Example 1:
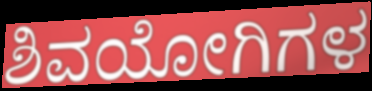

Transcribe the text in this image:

ಶಿವಯೋಗಿಗಳ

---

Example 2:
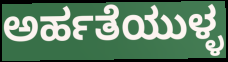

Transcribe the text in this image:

ಅರ್ಹತೆಯುಳ್ಳ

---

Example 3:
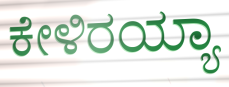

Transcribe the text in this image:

ಕೇಳಿರಯ್ಯಾ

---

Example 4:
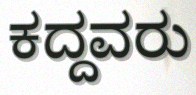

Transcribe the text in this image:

ಕದ್ದವರು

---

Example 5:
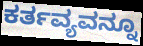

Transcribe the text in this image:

ಕರ್ತವ್ಯವನ್ನೂ